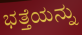
ಭತ್ತೆಯನ್ನು